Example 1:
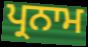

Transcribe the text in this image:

ਪ੍ਰਨਾਮ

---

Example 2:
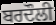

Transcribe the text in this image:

ਬਰਦੌਲੀ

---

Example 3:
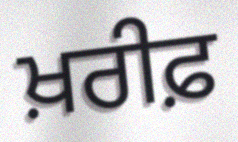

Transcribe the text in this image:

ਖ਼ਰੀਫ਼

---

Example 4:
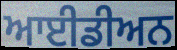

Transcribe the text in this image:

ਆਈਡੀਅਨ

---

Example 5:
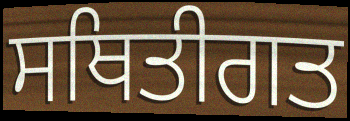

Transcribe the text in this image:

ਸਥਿਤੀਗਤ